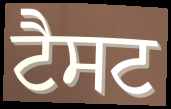
ਟੈਸਟ